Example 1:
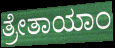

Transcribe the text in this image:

ತ್ರೇತಾಯಾಂ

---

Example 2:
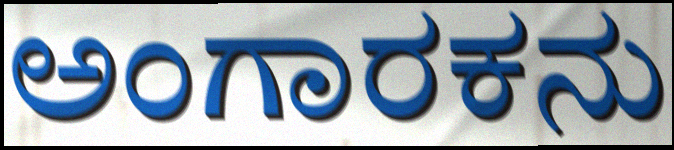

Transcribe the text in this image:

ಅಂಗಾರಕನು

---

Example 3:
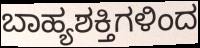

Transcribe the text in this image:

ಬಾಹ್ಯಶಕ್ತಿಗಳಿಂದ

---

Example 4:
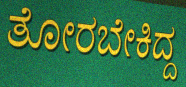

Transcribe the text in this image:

ತೋರಬೇಕಿದ್ದ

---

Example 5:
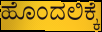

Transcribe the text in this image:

ಹೊಂದಲಿಕ್ಕೆ